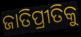
ଜାତିପ୍ରୀତିକୁ